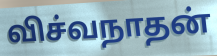
விச்வநாதன்